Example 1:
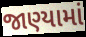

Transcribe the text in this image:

જાણ્યામાં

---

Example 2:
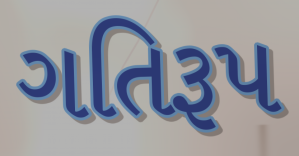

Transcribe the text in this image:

ગતિરૂપ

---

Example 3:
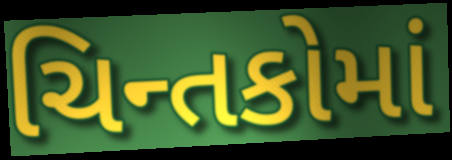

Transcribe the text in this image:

ચિન્તકોમાં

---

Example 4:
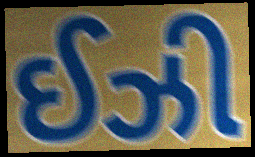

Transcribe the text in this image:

ઈઝી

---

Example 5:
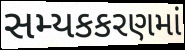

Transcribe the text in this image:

સમ્યકકરણમાં